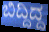
ಬಿದ್ದಿದ್ದ